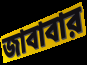
জাবাবার